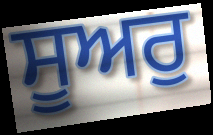
ਸੂਅਰੁ